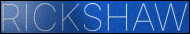
RICKSHAW